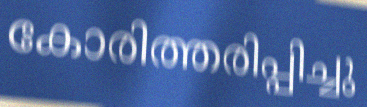
കോരിത്തരിപ്പിച്ചു